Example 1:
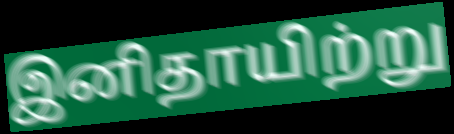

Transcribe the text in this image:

இனிதாயிற்று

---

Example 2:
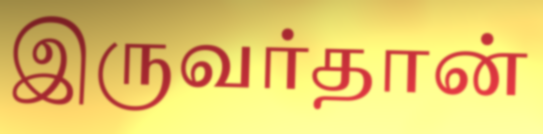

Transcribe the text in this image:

இருவர்தான்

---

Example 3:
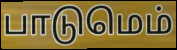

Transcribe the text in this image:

பாடுமெம்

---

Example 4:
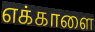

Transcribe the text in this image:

எக்காளை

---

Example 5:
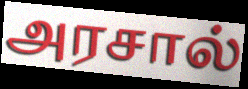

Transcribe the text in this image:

அரசால்